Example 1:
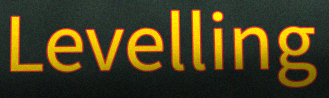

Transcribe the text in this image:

Levelling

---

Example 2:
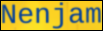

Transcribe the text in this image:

Nenjam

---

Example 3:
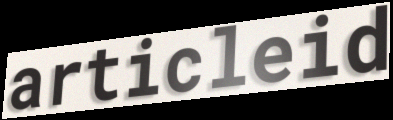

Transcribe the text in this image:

articleid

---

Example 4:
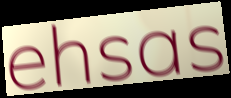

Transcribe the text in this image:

ehsas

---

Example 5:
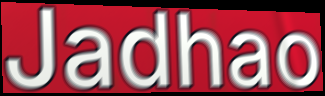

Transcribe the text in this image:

Jadhao